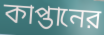
কাপ্তানের